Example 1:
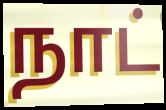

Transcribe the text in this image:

நாட்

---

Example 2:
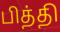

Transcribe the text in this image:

பித்தி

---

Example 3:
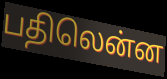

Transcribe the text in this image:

பதிலென்ன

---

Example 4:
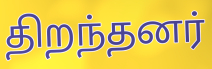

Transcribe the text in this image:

திறந்தனர்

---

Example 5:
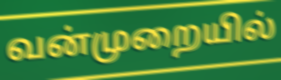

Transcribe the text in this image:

வன்முறையில்